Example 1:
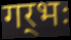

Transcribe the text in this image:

गर्भः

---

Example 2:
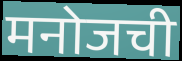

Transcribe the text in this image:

मनोजची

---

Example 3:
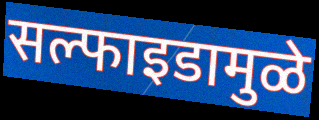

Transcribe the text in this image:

सल्फाइडामुळे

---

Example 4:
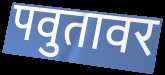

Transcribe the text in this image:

पवुतावर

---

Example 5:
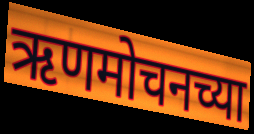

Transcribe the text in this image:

ऋणमोचनच्या